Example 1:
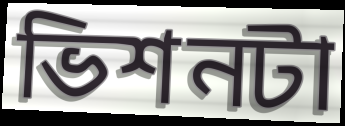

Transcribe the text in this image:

ভিশনটা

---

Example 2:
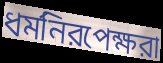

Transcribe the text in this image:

ধর্মনিরপেক্ষরা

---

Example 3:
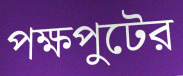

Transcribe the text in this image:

পক্ষপুটের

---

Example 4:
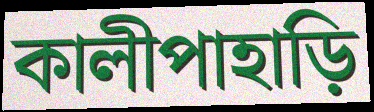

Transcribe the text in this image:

কালীপাহাড়ি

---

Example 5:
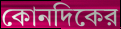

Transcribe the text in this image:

কোনদিকের